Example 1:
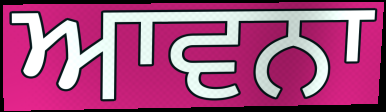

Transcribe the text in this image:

ਆਵਨਾ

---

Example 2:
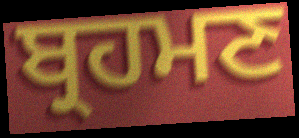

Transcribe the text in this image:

ਬ੍ਰਹਮਣ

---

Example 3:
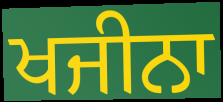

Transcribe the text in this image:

ਖਜੀਨਾ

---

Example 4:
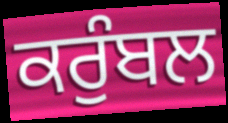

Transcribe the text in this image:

ਕਰੁੰਬਲ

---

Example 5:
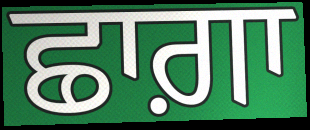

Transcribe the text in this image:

ਛਾਗ਼ਾ